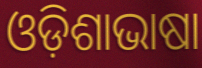
ଓଡ଼ିଶାଭାଷା